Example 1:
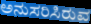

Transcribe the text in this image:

ಅನುಸರಿಸಿರುವ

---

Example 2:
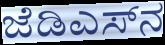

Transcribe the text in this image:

ಜೆಡಿಎಸ್‌ನ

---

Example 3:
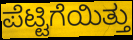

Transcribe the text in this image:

ಪೆಟ್ಟಿಗೆಯಿತ್ತು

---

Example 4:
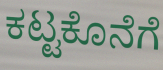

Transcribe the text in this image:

ಕಟ್ಟಕೊನೆಗೆ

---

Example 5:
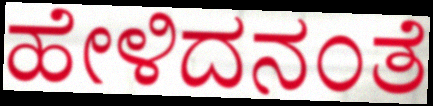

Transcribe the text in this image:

ಹೇಳಿದನಂತೆ